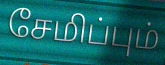
சேமிப்பும்